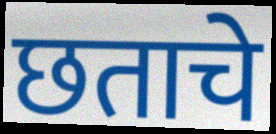
छताचे